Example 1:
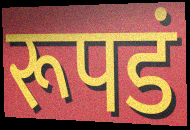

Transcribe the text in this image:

रूपडं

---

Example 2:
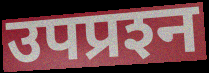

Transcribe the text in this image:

उपप्रश्‍न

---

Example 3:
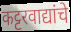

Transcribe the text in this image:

कट्टरवाद्यांचे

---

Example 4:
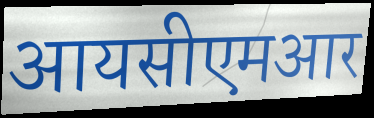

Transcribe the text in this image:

आयसीएमआर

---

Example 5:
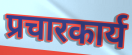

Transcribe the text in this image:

प्रचारकार्य